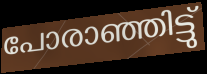
പോരാഞ്ഞിട്ടു്